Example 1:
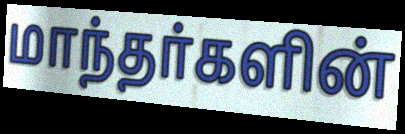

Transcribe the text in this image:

மாந்தர்களின்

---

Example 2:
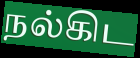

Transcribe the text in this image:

நல்கிட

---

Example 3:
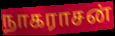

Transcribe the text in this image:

நாகராசன்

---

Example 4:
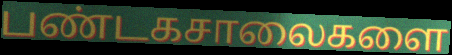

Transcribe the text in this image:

பண்டகசாலைகளை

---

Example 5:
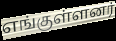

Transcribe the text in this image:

எங்குள்ளனர்